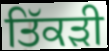
ਤਿੱਕੜੀ